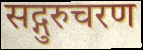
सद्गुरुचरण